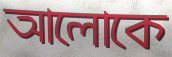
আলোকে